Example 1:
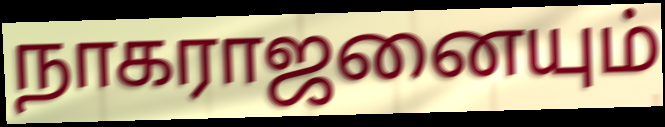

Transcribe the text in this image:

நாகராஜனையும்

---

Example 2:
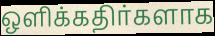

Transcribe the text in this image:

ஒளிக்கதிர்களாக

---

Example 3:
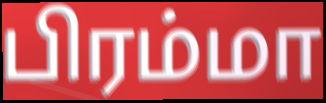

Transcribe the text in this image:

பிரம்மா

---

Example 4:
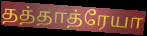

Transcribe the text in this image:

தத்தாத்ரேயா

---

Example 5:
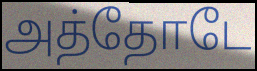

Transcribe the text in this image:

அத்தோடே